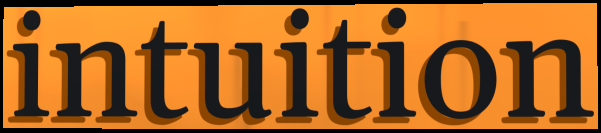
intuition